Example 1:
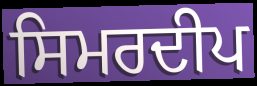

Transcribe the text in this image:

ਸਿਮਰਦੀਪ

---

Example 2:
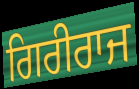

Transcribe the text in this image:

ਗਿਰੀਰਾਜ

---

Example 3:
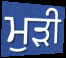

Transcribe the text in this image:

ਮੁੜੀ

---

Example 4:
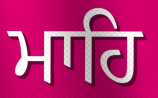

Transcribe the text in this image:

ਮਾਹਿ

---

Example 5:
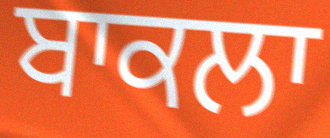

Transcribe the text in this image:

ਬਾਕਲਾ